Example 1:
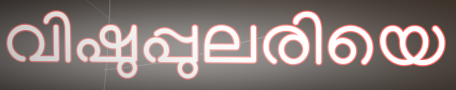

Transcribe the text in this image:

വിഷുപ്പുലരിയെ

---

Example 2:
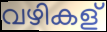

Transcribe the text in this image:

വഴികള്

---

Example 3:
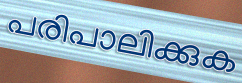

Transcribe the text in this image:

പരിപാലിക്കുക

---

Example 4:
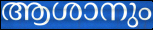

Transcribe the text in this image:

ആശാനും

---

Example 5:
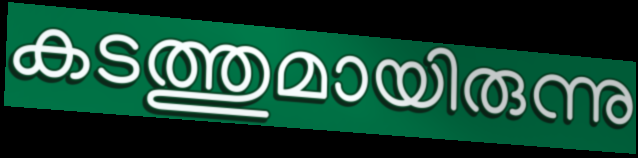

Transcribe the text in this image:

കടത്തുമായിരുന്നു